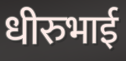
धीरुभाई